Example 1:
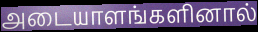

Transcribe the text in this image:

அடையாளங்களினால்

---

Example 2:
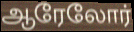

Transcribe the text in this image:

ஆரேலோர்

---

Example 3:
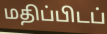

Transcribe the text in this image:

மதிப்பிடப்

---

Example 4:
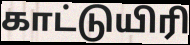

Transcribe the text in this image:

காட்டுயிரி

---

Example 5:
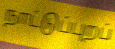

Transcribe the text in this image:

நாட்டுப்புறப்